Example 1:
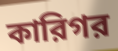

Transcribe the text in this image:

কারিগর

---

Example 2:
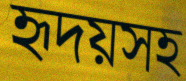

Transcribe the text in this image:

হৃদয়সহ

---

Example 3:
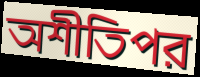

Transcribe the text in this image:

অশীতিপর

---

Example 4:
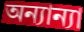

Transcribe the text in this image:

অন্যান্যা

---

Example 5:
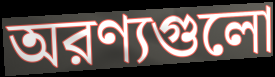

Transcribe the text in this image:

অরণ্যগুলো